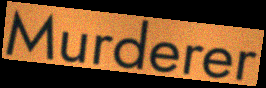
Murderer